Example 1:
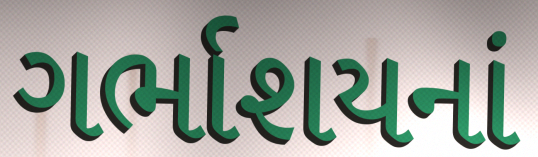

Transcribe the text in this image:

ગર્ભાશયનાં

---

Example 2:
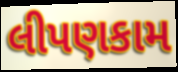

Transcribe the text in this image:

લીપણકામ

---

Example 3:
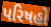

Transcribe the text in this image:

પરિષહો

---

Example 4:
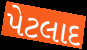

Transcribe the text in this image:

પેટલાદ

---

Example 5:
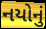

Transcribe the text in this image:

નયોનું